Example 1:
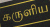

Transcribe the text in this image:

கருளிய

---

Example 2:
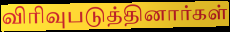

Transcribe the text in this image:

விரிவுபடுத்தினார்கள்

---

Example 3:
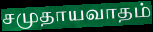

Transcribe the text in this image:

சமுதாயவாதம்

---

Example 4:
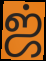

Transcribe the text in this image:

ஜ்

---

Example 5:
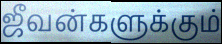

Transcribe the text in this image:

ஜீவன்களுக்கும்